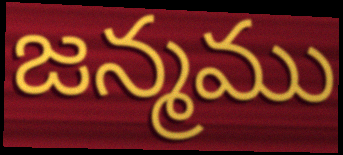
జన్మము